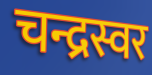
चन्द्रस्वर